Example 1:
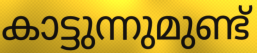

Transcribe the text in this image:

കാട്ടുന്നുമുണ്ട്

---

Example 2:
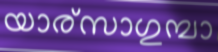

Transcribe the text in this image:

യാര്സാഗുമ്പാ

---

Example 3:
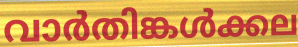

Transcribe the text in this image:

വാർതിങ്കൾക്കല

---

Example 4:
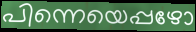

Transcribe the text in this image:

പിന്നെയെപ്പഴോ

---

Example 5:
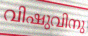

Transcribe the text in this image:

വിഷുവിനു